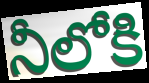
నీలోకి